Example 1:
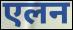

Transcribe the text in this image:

एलन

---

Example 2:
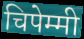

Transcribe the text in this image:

चिपेम्मी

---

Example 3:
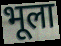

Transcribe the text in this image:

भूला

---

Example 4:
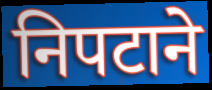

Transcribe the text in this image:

निपटाने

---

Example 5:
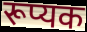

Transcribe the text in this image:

रूप्यक